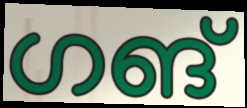
ഗങ്